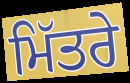
ਮਿੱਤਰੇ